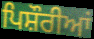
ਪਿਸ਼ੌਰੀਆਂ